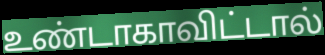
உண்டாகாவிட்டால்